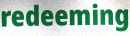
redeeming